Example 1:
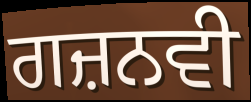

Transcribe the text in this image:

ਗਜ਼ਨਵੀ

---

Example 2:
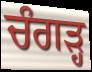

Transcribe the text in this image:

ਚੰਗੜ੍ਹ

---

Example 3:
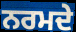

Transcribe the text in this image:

ਨਰਮਦੇ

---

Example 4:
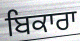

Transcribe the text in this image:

ਬਿਕਾਰਾ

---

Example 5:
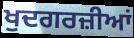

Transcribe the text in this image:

ਖੁਦਗਰਜ਼ੀਆਂ